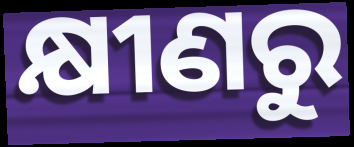
କ୍ଷୀଣରୁ